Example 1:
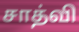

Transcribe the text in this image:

சாத்வி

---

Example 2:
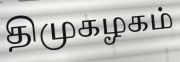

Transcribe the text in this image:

திமுகழகம்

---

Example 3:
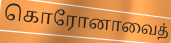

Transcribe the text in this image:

கொரோனாவைத்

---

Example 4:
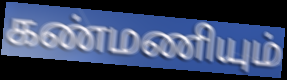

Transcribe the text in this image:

கண்மணியும்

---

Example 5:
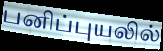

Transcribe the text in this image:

பனிப்புயலில்